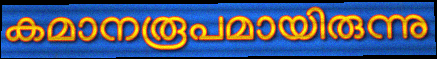
കമാനരൂപമായിരുന്നു